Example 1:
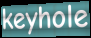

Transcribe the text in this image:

keyhole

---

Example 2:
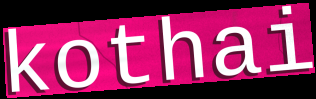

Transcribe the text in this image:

kothai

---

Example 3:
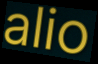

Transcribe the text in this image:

alio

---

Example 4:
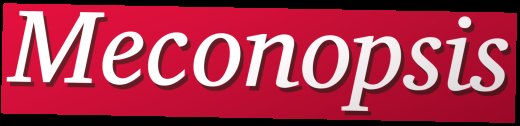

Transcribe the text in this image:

Meconopsis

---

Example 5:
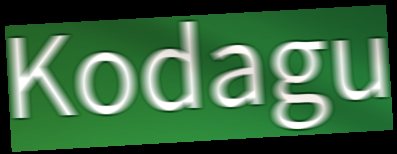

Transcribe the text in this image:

Kodagu